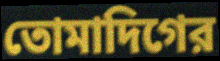
তোমাদিগের